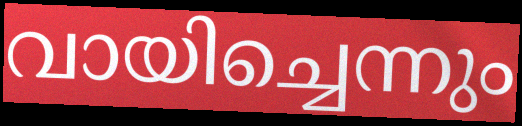
വായിച്ചെന്നും